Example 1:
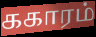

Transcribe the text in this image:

ககாரம்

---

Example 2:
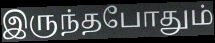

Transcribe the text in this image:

இருந்தபோதும்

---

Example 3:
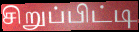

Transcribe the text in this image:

சிறுப்பிட்டி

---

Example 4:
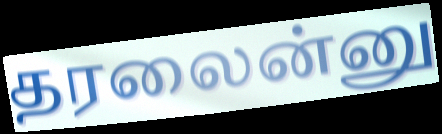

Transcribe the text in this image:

தரலைன்னு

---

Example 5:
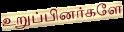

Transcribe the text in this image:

உறுப்பினர்களே